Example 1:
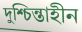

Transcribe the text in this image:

দুশ্চিন্তাহীন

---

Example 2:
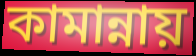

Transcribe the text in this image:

কামান্নায়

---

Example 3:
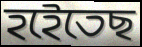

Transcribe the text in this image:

হইেতেছ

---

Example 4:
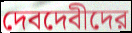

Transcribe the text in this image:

দেবদেবীদের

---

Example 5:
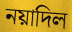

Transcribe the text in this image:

নয়াদিল